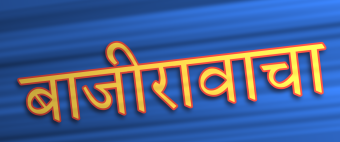
बाजीरावाचा